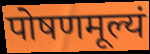
पोषणमूल्यं